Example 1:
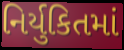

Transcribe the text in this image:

નિર્યુકિતમાં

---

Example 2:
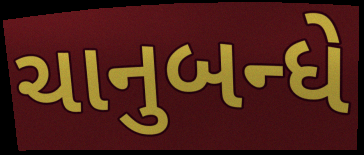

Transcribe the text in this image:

ચાનુબન્ધે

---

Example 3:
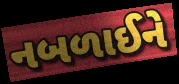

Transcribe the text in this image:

નબળાઈને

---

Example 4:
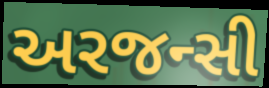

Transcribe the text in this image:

અરજન્સી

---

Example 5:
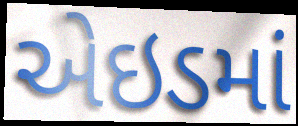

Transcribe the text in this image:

એઇડમાં